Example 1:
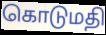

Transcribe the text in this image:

கொடுமதி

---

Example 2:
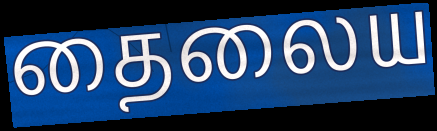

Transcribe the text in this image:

தைலைய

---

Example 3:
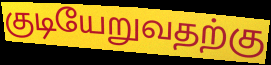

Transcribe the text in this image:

குடியேறுவதற்கு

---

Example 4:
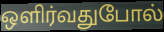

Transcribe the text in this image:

ஒளிர்வதுபோல்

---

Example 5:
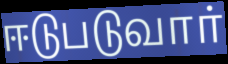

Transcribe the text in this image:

ஈடுபடுவார்